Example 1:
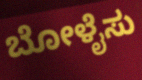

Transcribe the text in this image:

ಬೋಳೈಸು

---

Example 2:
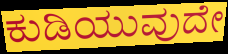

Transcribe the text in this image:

ಕುಡಿಯುವುದೇ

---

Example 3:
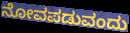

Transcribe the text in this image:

ನೋವಪಡುವಂದು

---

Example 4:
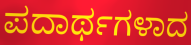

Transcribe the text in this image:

ಪದಾರ್ಥಗಳಾದ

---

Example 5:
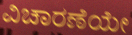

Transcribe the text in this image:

ವಿಚಾರಣೆಯೇ